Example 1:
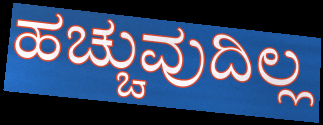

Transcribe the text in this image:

ಹಚ್ಚುವುದಿಲ್ಲ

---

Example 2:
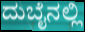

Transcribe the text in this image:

ದುಬೈನಲ್ಲಿ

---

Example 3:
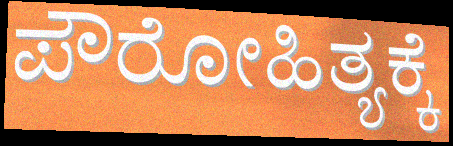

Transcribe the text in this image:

ಪೌರೋಹಿತ್ಯಕ್ಕೆ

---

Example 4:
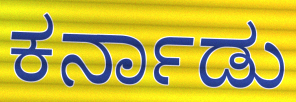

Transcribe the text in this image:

ಕರ್ನಾಡು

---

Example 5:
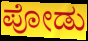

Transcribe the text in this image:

ಪೋಡು